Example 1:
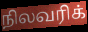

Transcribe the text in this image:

நிலவரிக்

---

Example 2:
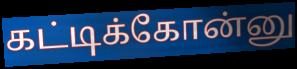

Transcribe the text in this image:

கட்டிக்கோன்னு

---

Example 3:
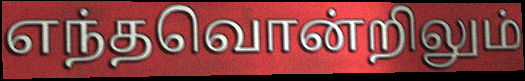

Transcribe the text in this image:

எந்தவொன்றிலும்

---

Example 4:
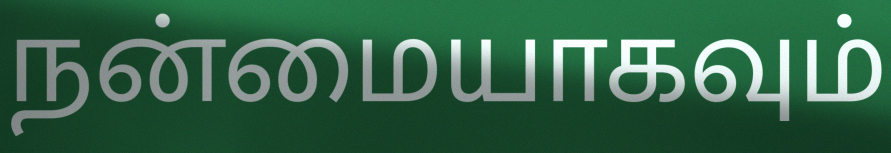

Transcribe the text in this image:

நன்மையாகவும்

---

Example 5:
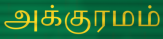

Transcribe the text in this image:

அக்குரமம்